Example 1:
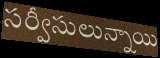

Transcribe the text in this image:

సర్వీసులున్నాయి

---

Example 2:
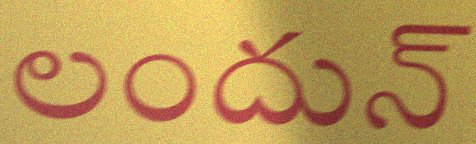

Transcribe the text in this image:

లందున్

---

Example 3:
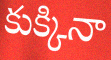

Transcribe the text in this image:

కుక్కినా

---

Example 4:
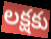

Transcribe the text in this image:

లక్షకు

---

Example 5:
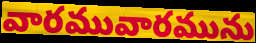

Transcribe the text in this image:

వారమువారమును